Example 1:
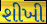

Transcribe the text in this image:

શીખી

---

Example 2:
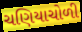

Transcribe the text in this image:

ચણિયાચોળી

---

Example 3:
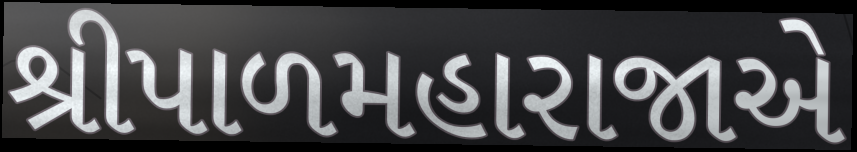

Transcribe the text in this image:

શ્રીપાળમહારાજાએ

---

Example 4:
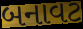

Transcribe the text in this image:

બનાવટ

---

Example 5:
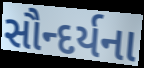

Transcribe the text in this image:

સૌન્દર્યના